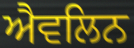
ਐਵਲਿਨ